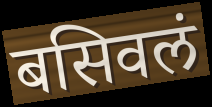
बसिवलं